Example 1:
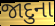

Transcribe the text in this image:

જાદુના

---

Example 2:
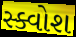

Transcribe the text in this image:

સ્ક્વોશ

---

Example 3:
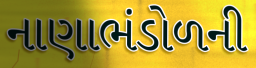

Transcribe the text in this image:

નાણાભંડોળની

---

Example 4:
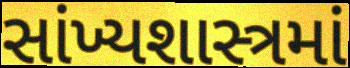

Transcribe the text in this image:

સાંખ્યશાસ્ત્રમાં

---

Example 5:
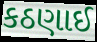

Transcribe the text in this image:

કઠણાઈ